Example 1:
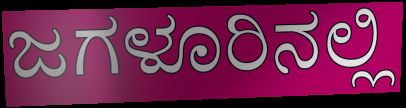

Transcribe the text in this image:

ಜಗಳೂರಿನಲ್ಲಿ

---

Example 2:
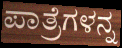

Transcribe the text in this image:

ಪಾತ್ರೆಗಳನ್ನ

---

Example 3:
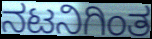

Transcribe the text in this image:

ನಟನಿಗಿಂತ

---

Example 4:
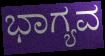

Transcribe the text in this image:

ಭಾಗ್ಯವ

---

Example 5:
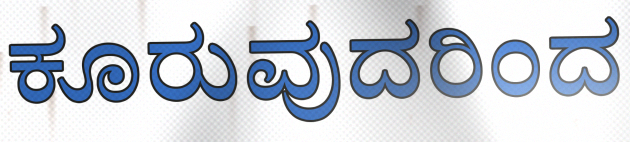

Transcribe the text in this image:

ಕೂರುವುದರಿಂದ